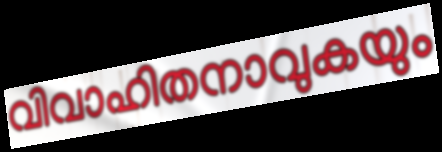
വിവാഹിതനാവുകയും